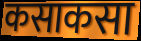
कसाकसा